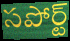
సపోర్ట్